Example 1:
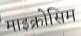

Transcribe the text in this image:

माइक्रोसिम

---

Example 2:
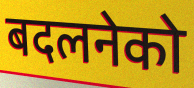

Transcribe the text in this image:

बदलनेको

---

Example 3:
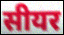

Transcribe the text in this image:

सीयर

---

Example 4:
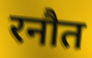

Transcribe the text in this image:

रनौत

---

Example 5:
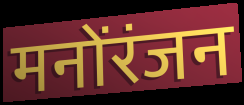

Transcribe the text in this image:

मनोंरंजन